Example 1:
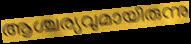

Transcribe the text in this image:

ആശ്ചര്യവുമായിരുന്നു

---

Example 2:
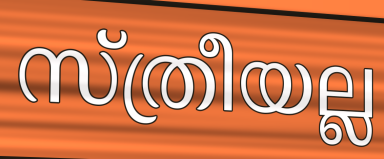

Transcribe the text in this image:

സ്ത്രീയല്ല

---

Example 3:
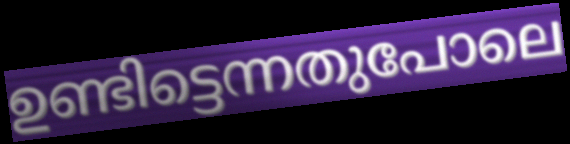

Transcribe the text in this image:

ഉണ്ടിട്ടെന്നതുപോലെ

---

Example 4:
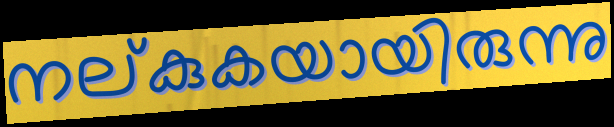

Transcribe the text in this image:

നല്കുകയായിരുന്നു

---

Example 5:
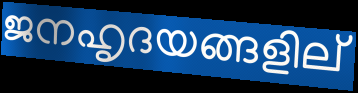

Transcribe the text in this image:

ജനഹൃദയങ്ങളില്